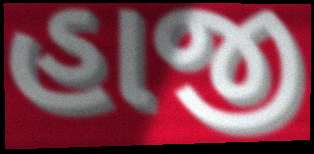
હાજી